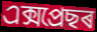
এক্সপ্ৰেছৰ